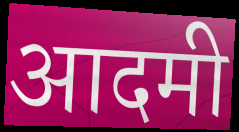
आदमी